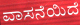
ವಾಸನೆಯಿದೆ